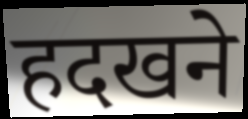
हदखने